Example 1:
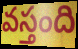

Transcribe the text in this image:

వస్తంది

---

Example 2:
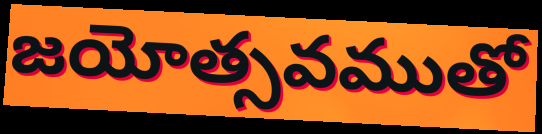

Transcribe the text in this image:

జయోత్సవముతో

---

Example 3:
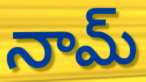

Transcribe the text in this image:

నామ్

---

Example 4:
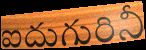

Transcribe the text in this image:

ఐదుగురినీ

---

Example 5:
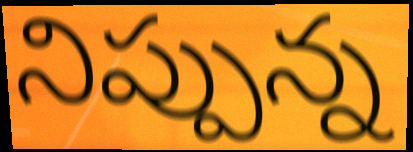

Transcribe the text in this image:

నిప్పున్న